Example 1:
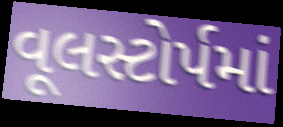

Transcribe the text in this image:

વૂલસ્ટોર્પમાં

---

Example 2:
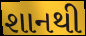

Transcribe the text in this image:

શાનથી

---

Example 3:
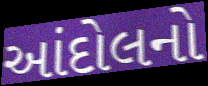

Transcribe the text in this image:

આંદોલનો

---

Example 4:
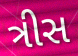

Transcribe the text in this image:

ત્રીસ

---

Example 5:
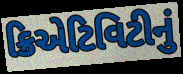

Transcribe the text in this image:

ક્રિએટિવિટીનું